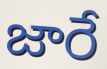
జారే